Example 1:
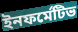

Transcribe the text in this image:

ইনফর্মেটিভ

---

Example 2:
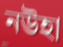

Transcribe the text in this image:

নউহা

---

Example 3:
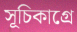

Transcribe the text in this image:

সূচিকাগ্রে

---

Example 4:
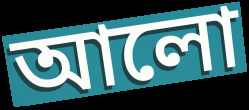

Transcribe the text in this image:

আলো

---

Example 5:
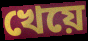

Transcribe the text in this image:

খেয়ে